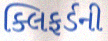
ક્લિફર્ડની